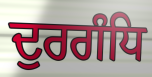
ਦੁਰਗੰਧਿ